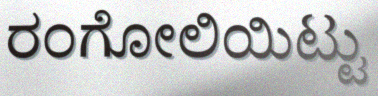
ರಂಗೋಲಿಯಿಟ್ಟು